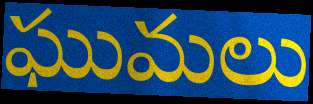
ఘుమలు